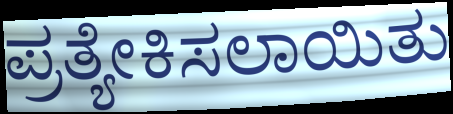
ಪ್ರತ್ಯೇಕಿಸಲಾಯಿತು